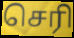
செரி